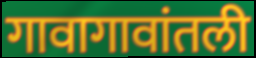
गावागावांतली